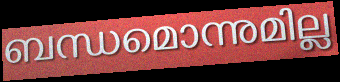
ബന്ധമൊന്നുമില്ല